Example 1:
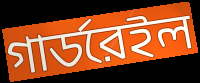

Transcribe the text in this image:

গার্ডরেইল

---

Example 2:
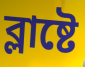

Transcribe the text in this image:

ব্লাষ্টে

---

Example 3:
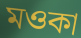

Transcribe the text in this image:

মওকা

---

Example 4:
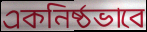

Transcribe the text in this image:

একনিষ্ঠভাবে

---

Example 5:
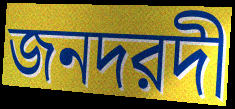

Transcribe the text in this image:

জনদরদী